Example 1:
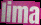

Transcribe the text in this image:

lima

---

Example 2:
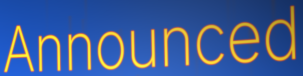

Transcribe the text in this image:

Announced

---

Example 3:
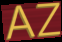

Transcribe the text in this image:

AZ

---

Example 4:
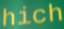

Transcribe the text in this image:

hich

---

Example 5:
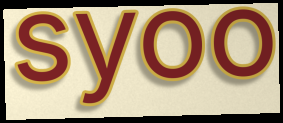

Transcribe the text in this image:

syoo